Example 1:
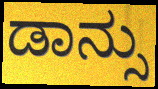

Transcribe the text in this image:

ಡಾನ್ಸು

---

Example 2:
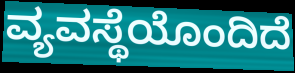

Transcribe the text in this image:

ವ್ಯವಸ್ಥೆಯೊಂದಿದೆ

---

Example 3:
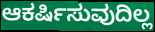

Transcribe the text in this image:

ಆಕರ್ಷಿಸುವುದಿಲ್ಲ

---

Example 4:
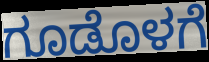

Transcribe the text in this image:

ಗೂಡೊಳಗೆ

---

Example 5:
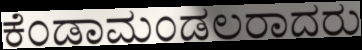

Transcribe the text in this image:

ಕೆಂಡಾಮಂಡಲರಾದರು